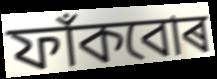
ফাঁকবোৰ